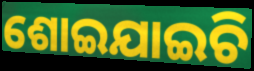
ଶୋଇଯାଇଚି